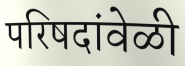
परिषदांवेळी